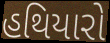
હથિયારો